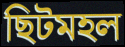
ছিটমহল